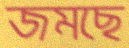
জমছে